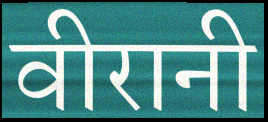
वीरानी